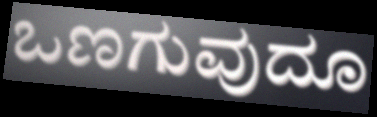
ಒಣಗುವುದೂ